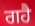
ਗਹੈ